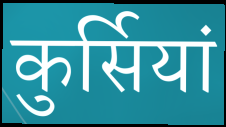
कुर्सियां